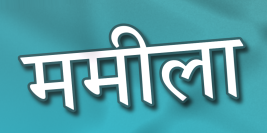
ममीला